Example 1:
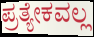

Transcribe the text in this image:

ಪ್ರತ್ಯೇಕವಲ್ಲ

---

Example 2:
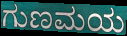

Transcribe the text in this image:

ಗುಣಮಯ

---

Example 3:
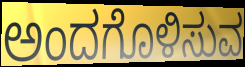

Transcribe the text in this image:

ಅಂದಗೊಳಿಸುವ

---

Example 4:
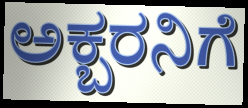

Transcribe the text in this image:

ಅಕ್ಬರನಿಗೆ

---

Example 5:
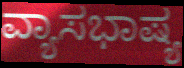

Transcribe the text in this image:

ವ್ಯಾಸಭಾಷ್ಯ